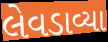
લેવડાવ્યા